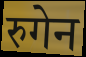
रुगेन